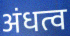
अंधत्व